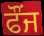
ਫੌਂਜ